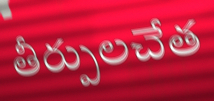
తీర్పులచేత